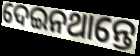
ଦେଇନଥାନ୍ତେ